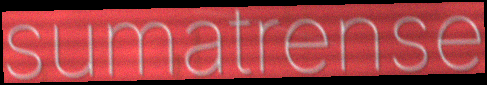
sumatrense